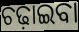
ଚଢ଼ାଇବା